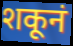
शकूनं